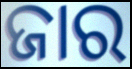
ଜାର